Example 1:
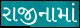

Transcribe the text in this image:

રાજીનામાં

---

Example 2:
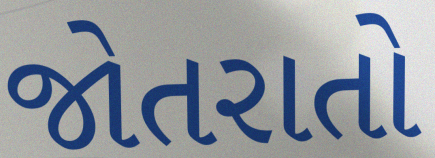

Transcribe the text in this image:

જોતરાતો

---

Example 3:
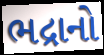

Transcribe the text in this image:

ભદ્રાનો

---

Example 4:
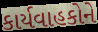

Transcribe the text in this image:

કાર્યવાહકોને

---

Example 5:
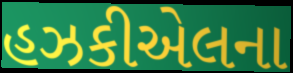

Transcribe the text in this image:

હઝકીએલના